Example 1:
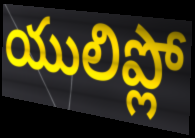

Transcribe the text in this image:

యులిప్లో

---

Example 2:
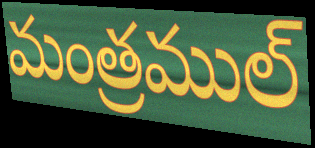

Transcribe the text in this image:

మంత్రముల్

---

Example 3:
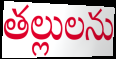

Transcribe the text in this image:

తల్లులను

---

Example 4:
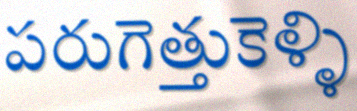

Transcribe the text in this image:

పరుగెత్తుకెళ్ళి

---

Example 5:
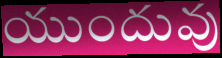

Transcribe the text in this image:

యుందువు